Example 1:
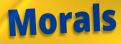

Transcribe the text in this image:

Morals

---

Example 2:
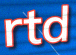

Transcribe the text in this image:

rtd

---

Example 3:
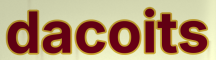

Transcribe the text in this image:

dacoits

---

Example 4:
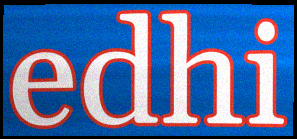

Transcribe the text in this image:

edhi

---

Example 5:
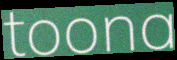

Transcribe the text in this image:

toona